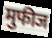
मुफीज